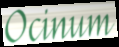
Ocinum